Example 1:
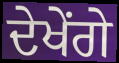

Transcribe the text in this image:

ਦੇਖੇਂਗੇ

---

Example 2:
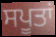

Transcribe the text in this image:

ਸਪੂਤਾਂ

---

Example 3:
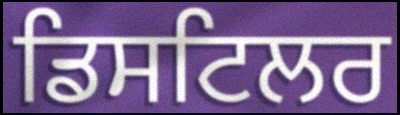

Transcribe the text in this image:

ਡਿਸਟਿਲਰ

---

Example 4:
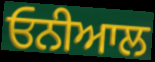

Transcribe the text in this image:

ਓਨੀਆਲ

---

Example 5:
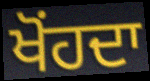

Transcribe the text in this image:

ਖੋਂਹਦਾ